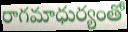
రాగమాధుర్యంతో